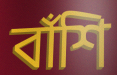
বাঁশি